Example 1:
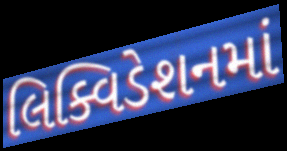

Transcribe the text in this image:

લિક્વિડેશનમાં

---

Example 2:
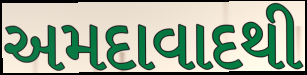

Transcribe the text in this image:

અમદાવાદથી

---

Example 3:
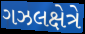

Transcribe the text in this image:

ગઝલક્ષેત્રે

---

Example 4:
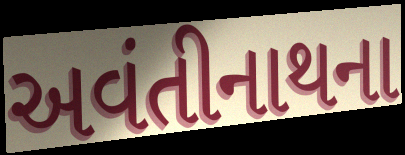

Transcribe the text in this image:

અવંતીનાથના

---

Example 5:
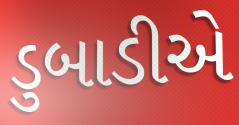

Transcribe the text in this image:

ડુબાડીએ